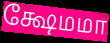
க்ஷேமமா